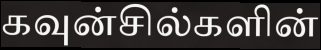
கவுன்சில்களின்